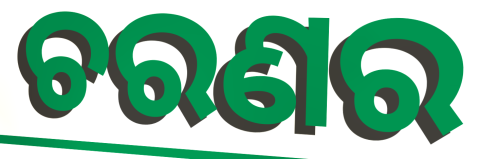
ଚରଣର